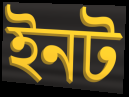
ইনট